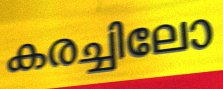
കരച്ചിലോ